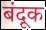
बंदूक